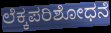
ಲೆಕ್ಕಪರಿಶೋಧನೆ